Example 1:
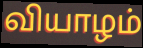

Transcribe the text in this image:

வியாழம்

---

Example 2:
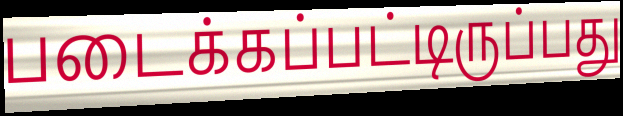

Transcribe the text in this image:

படைக்கப்பட்டிருப்பது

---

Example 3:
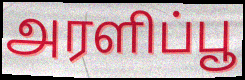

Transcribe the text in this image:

அரளிப்பூ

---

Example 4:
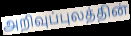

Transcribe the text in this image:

அறிவுப்புலத்தின்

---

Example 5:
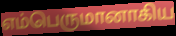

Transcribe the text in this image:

எம்பெருமானாகிய